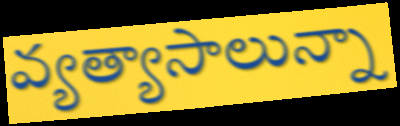
వ్యత్యాసాలున్నా